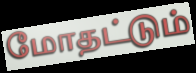
மோதட்டும்